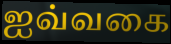
ஐவ்வகை